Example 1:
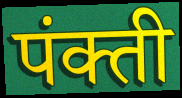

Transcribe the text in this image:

पंक्ती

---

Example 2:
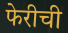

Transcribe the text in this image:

फेरीची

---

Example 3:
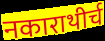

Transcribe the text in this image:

नकाराथीर्च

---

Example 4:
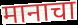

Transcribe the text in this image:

मानाचा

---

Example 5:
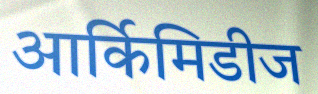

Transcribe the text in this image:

आर्किमिडीज